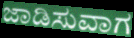
ಜಾಡಿಸುವಾಗ